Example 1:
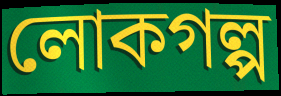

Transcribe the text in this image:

লোকগল্প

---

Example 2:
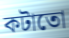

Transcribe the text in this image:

কটাতো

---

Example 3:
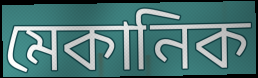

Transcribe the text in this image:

মেকানিক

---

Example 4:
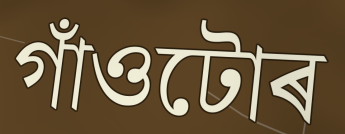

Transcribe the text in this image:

গাঁওটোৰ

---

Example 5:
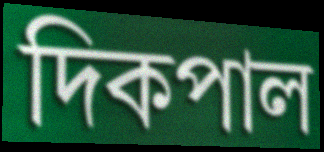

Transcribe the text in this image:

দিকপাল